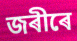
জৰীৰে